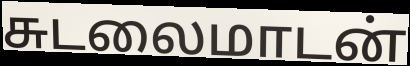
சுடலைமாடன்